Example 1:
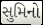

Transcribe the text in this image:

સુમિનો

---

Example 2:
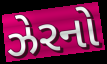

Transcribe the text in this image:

ઝેરનો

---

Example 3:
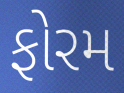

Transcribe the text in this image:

ફોરમ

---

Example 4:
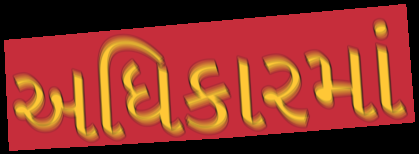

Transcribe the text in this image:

અધિકારમાં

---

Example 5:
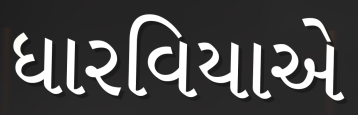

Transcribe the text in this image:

ધારવિયાએ